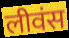
लीवंस